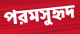
পরমসুহৃদ